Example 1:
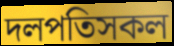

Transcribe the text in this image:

দলপতিসকল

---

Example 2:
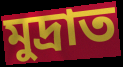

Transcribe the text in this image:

মুদ্ৰাত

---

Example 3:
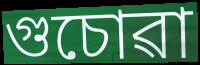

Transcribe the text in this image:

গুচোৱা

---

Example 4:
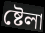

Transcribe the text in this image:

ষ্টেলা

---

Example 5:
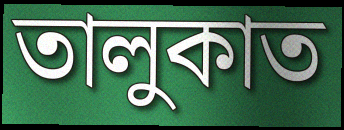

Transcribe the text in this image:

তালুকাত